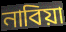
নাবিয়া